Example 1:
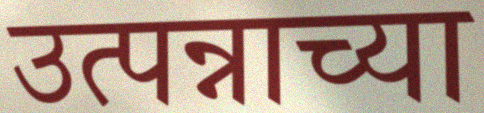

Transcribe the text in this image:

उत्पन्नाच्या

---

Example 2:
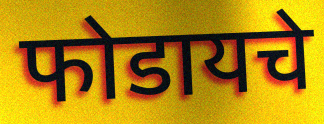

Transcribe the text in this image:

फोडायचे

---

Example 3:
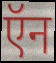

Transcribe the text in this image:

ऍन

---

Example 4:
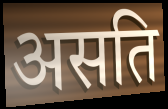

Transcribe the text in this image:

असति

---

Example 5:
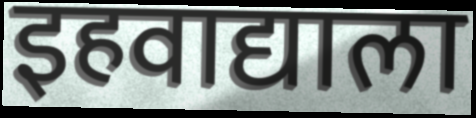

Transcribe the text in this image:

इहवाद्याला